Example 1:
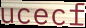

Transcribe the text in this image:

ucecf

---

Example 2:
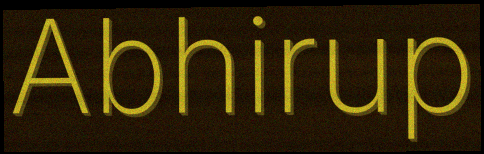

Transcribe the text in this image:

Abhirup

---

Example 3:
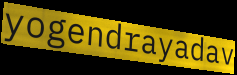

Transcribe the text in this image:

yogendrayadav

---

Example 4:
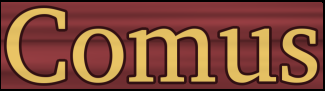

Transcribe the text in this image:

Comus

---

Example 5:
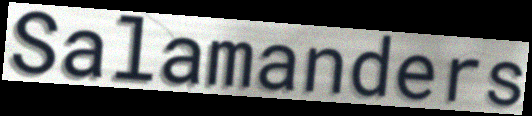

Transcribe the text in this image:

Salamanders